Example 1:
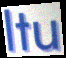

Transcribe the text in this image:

Itu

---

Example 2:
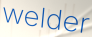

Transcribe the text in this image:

welder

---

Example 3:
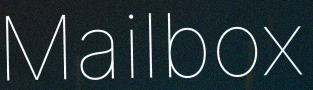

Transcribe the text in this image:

Mailbox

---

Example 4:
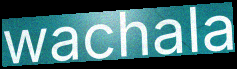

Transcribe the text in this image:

wachala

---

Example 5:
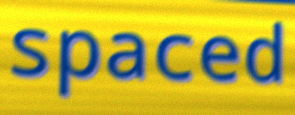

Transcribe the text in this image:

spaced